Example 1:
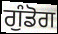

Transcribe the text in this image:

ਗੁੰਡੋਗ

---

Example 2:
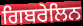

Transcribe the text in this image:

ਗਿਬਰੇਲਿਨ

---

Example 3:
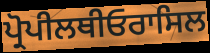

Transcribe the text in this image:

ਪ੍ਰੋਪੀਲਥੀਓਰਾਸਿਲ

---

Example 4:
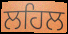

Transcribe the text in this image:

ਲਹਿਲ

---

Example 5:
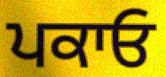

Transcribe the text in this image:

ਪਕਾਓ